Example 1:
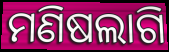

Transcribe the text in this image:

ମଣିଷଲାଗି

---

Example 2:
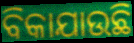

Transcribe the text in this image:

ବିକାଯାଉଛି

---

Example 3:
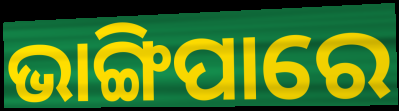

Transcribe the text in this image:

ଭାଙ୍ଗିପାରେ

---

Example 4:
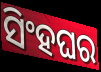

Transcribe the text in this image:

ସିଂହଘର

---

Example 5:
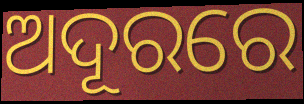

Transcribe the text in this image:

ଅଦୂରରେ